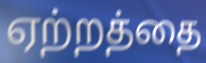
ஏற்றத்தை